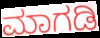
ಮಾಗಡಿ